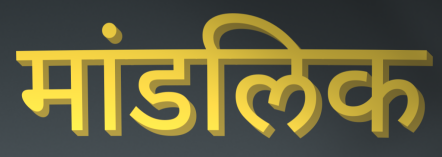
मांडलिक